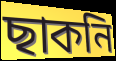
ছাকনি